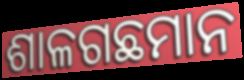
ଶାଳଗଛମାନ